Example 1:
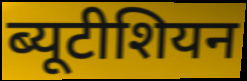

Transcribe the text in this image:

ब्यूटीशियन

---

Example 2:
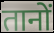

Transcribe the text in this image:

तानों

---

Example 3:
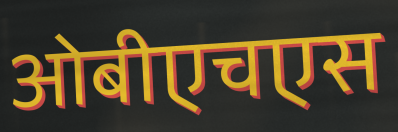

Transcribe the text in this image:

ओबीएचएस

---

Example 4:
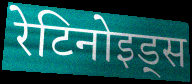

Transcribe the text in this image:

रेटिनोइड्स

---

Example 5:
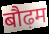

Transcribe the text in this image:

बौढ़म